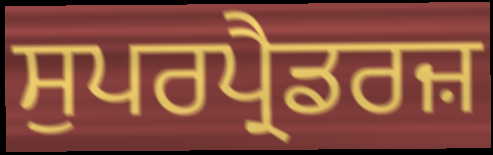
ਸੁਪਰਪ੍ਰੈਡਰਜ਼